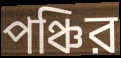
পঞ্চির